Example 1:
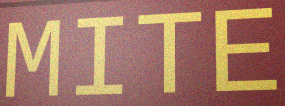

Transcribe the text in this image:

MITE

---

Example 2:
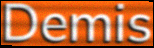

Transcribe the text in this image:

Demis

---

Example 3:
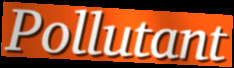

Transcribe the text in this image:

Pollutant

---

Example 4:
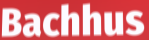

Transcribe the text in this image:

Bachhus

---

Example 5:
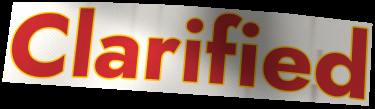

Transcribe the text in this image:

Clarified